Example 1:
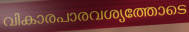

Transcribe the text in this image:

വികാരപാരവശ്യത്തോടെ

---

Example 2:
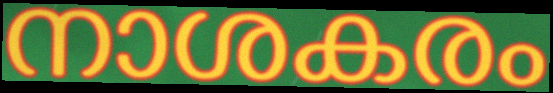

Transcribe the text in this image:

നാശകരം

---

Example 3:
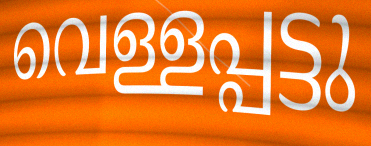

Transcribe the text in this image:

വെള്ളപ്പട്ടു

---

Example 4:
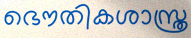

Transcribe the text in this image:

ഭൌതികശാസ്ത്ര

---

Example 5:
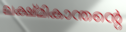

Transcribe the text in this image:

ലക്ഷ്മികാന്തന്റെ